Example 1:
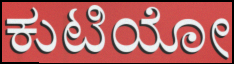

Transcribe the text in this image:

ಕುಟಿಯೋ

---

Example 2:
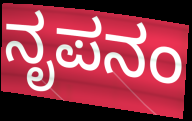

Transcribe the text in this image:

ನೃಪನಂ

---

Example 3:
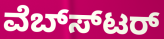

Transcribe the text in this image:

ವೆಬ್ಸ್‍ಟರ್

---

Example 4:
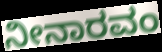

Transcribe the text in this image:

ನೀನಾರವಂ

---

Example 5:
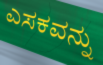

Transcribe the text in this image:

ಎಸಕವನ್ನು